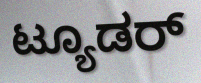
ಟ್ಯೂಡರ್